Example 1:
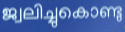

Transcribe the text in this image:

ജ്വലിച്ചുകൊണ്ടു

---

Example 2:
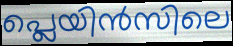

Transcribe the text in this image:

പ്ലെയിൻസിലെ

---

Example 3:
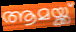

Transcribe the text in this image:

ആമയ്ക്ക്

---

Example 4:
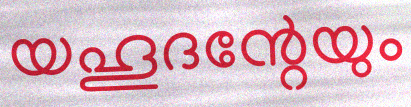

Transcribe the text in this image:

യഹൂദന്റേയും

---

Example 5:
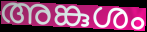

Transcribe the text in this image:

അങ്കുശം